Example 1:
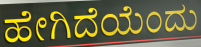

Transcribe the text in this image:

ಹೇಗಿದೆಯೆಂದು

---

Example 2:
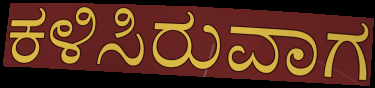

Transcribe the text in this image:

ಕಳಿಸಿರುವಾಗ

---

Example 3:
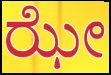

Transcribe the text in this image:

ಝೇ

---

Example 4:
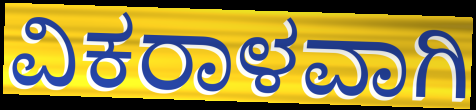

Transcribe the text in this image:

ವಿಕರಾಳವಾಗಿ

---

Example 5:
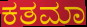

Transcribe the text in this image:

ಕತಮಾ